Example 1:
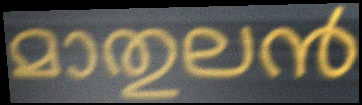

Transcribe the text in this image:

മാതുലൻ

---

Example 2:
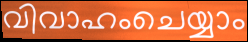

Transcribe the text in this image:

വിവാഹംചെയ്യാം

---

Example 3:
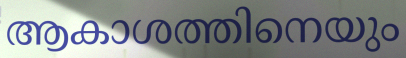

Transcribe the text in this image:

ആകാശത്തിനെയും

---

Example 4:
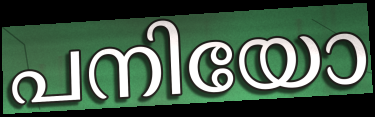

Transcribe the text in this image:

പനിയോ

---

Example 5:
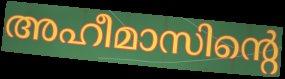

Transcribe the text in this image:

അഹീമാസിന്റെ